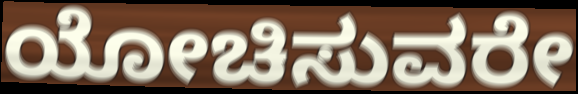
ಯೋಚಿಸುವರೇ